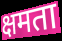
क्षमता